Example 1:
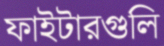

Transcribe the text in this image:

ফাইটারগুলি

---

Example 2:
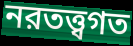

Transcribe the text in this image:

নরতত্ত্বগত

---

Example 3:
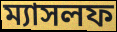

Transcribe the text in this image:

ম্যাসলফ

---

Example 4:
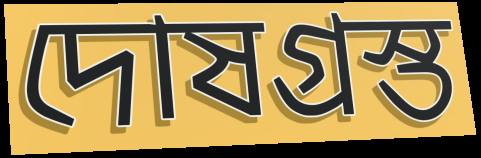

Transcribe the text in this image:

দোষগ্রস্ত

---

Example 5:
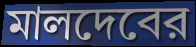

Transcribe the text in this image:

মালদেবের